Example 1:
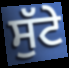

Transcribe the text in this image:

ਸੁੱਟੇ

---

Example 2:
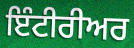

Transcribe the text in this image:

ਇੰਟੀਰੀਅਰ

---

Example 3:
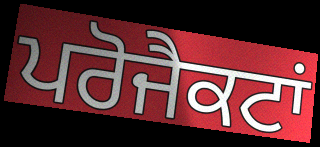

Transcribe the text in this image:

ਪਰੋਜੈਕਟਾਂ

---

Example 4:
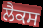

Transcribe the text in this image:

ਲੈਕਸ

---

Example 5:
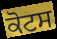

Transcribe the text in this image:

ਕੋਟਸ